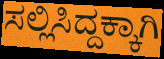
ಸಲ್ಲಿಸಿದ್ದಕ್ಕಾಗಿ